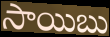
సాయిబు